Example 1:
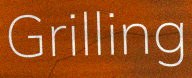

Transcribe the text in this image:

Grilling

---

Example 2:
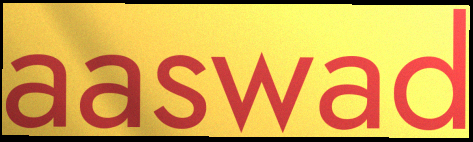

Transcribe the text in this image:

aaswad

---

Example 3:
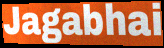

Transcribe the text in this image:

Jagabhai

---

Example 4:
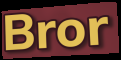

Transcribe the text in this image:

Bror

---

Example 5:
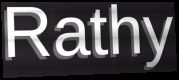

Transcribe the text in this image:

Rathy